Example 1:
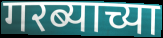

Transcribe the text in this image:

गरब्याच्या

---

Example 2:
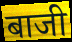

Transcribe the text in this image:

बाजी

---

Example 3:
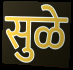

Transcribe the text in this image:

सुळे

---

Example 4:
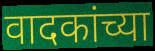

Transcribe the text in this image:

वादकांच्या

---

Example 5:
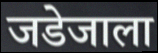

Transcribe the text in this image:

जडेजाला